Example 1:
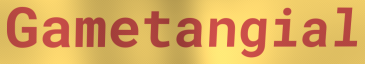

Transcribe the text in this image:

Gametangial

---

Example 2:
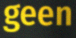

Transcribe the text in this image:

geen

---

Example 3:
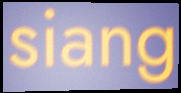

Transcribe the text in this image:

siang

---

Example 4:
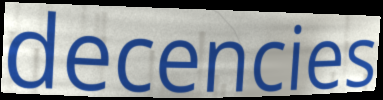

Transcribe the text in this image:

decencies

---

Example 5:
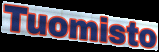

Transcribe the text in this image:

Tuomisto